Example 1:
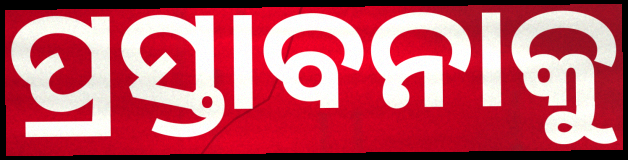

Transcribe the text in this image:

ପ୍ରସ୍ତାବନାକୁ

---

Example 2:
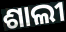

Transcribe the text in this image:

ଶାଲୀ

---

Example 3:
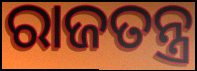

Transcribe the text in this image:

ରାଜତନ୍ତ୍ର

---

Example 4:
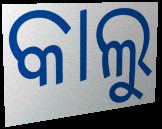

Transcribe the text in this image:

କାଲୁ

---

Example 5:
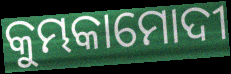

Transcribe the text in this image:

କୁମ୍ଭକାମୋଦୀ